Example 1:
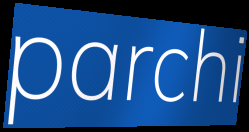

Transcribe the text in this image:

parchi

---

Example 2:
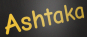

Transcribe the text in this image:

Ashtaka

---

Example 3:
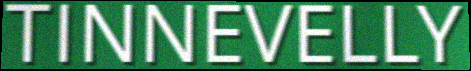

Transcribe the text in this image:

TINNEVELLY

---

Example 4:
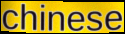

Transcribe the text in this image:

chinese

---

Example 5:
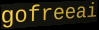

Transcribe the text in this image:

gofreeai